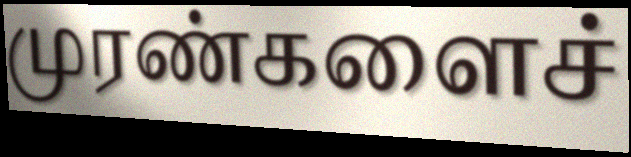
முரண்களைச்